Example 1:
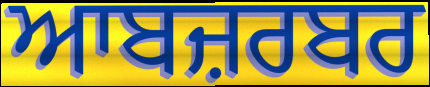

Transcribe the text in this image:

ਆਬਜ਼ਰਬਰ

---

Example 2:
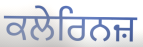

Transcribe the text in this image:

ਕਲੇਰਿਨਜ਼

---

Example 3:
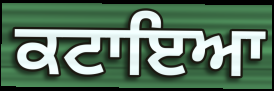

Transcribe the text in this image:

ਕਟਾਇਆ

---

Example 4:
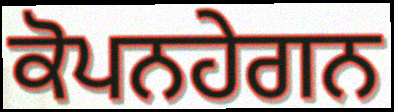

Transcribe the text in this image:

ਕੋਪਨਹੇਗਨ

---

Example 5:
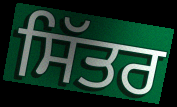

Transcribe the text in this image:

ਸਿੱਤਰ